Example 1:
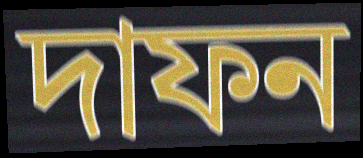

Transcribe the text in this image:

দাফন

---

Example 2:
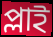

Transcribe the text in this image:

প্লাই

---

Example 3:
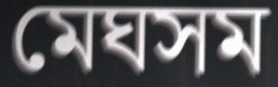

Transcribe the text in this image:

মেঘসম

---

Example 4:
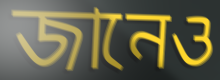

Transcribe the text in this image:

জানেও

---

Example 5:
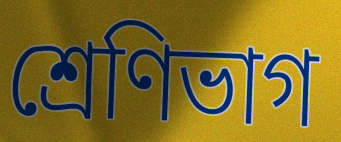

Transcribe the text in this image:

শ্রেণিভাগ